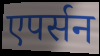
एपर्सन